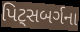
પિટ્સબર્ગના